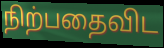
நிற்பதைவிட